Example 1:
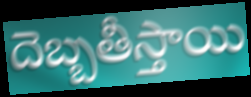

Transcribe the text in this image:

దెబ్బతీస్తాయి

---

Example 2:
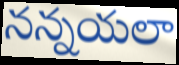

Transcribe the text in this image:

నన్నయలా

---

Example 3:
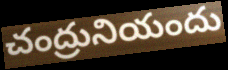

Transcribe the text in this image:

చంద్రునియందు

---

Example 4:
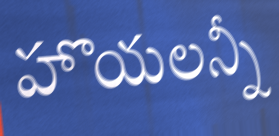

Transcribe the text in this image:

హొయలన్నీ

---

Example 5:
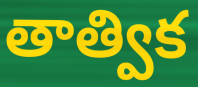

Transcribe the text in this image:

తాత్విక